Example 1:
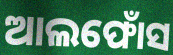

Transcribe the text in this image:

ଆଲଫୋଁସ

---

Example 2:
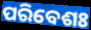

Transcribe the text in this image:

ପରିବେଶଃ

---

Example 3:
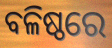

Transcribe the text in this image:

ବଳିଷ୍ଠରେ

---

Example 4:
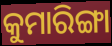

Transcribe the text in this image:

କୁମାରିଙ୍ଗା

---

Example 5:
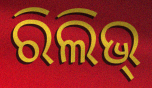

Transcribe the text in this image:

ରିଲିଭ୍